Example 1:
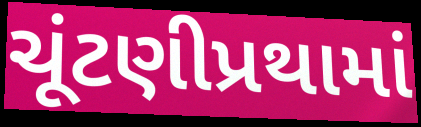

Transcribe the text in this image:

ચૂંટણીપ્રથામાં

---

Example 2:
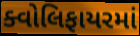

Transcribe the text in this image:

ક્વોલિફાયરમાં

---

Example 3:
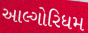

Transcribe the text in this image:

આલ્ગોરિધમ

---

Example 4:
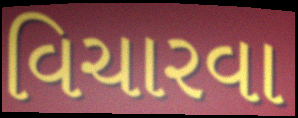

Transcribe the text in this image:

વિચારવા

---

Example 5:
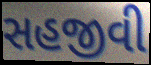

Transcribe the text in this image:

સહજીવી